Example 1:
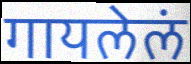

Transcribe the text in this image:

गायलेलं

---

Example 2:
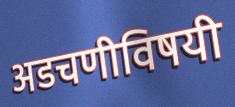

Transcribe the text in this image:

अडचणीविषयी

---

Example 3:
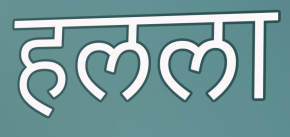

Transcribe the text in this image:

हलला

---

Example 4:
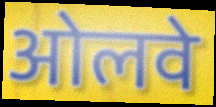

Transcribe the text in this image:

ओलवे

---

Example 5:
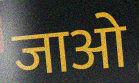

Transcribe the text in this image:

जाओ